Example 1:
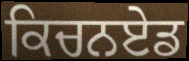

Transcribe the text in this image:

ਕਿਚਨਏਡ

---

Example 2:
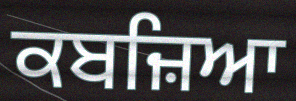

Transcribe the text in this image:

ਕਬਜ਼ਿਆ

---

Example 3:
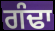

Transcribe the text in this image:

ਗੰਢਾ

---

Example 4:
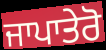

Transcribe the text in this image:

ਜਾਪਾਤੇਰੋ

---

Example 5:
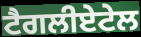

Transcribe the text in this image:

ਟੈਗਲੀਏਟੇਲ